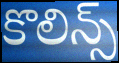
కొలిన్స్